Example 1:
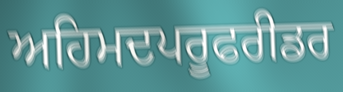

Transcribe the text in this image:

ਅਹਿਮਦਪਰੂਫਰੀਡਰ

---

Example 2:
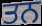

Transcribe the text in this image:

ਤਨ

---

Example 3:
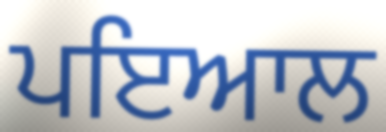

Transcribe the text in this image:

ਪਇਆਲ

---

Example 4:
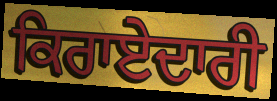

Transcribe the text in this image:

ਕਿਰਾਏਦਾਰੀ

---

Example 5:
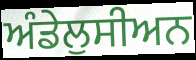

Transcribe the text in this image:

ਅੰਡੇਲੁਸੀਅਨ